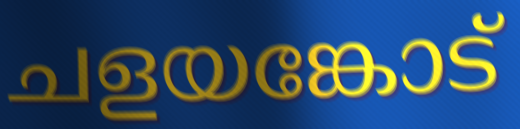
ചളയങ്കോട്